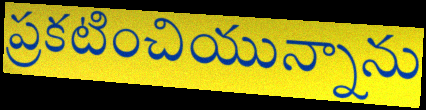
ప్రకటించియున్నాను